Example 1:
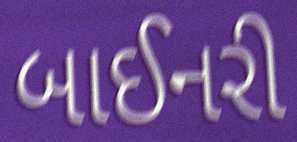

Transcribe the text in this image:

બાઈનરી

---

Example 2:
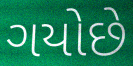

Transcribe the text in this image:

ગયોછે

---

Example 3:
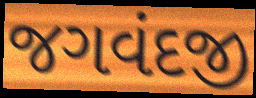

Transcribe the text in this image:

જગવંદજી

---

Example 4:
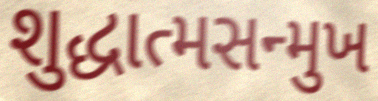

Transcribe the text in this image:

શુદ્ધાત્મસન્મુખ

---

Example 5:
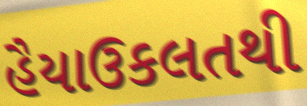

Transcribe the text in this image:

હૈયાઉકલતથી